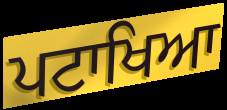
ਪਟਾਖਿਆ